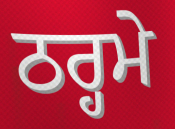
ਠਰ੍ਹਮੇ